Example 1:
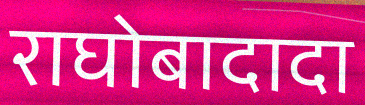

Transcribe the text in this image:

राघोबादादा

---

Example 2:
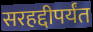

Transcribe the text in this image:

सरहद्दीपर्यंत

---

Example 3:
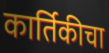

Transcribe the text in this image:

कार्तिकीचा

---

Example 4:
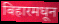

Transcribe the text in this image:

बिहारमधून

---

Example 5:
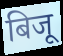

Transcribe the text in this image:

बिजू